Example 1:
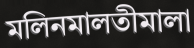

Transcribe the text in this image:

মলিনমালতীমালা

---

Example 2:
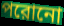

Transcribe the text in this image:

পরোনো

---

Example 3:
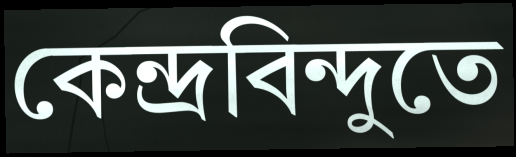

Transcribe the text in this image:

কেন্দ্রবিন্দুতে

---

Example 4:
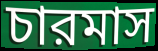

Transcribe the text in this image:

চারমাস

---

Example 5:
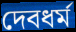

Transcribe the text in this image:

দেবধর্ম